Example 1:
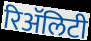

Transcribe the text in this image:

रिॲलिटी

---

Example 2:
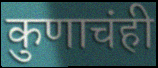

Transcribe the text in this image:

कुणाचंही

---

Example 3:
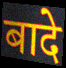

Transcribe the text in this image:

बादे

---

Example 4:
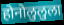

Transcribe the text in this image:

होनोलुलुला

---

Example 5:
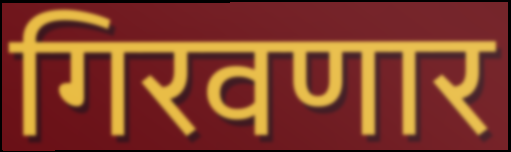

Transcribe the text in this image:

गिरवणार